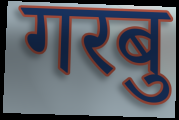
गरबु